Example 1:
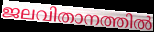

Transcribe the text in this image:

ജലവിതാനത്തിൽ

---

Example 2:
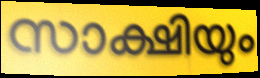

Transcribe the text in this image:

സാക്ഷിയും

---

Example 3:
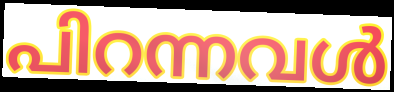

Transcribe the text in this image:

പിറന്നവൾ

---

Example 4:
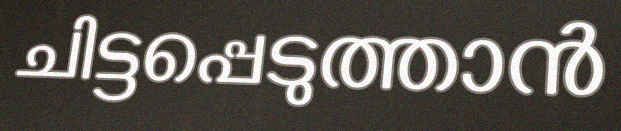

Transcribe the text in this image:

ചിട്ടപ്പെടുത്താൻ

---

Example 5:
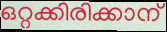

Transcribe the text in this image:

ഒറ്റക്കിരിക്കാന്